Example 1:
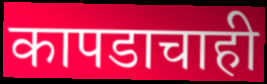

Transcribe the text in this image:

कापडाचाही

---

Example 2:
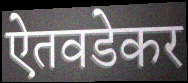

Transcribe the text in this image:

ऐतवडेकर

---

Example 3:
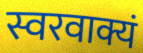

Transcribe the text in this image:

स्वरवाक्यं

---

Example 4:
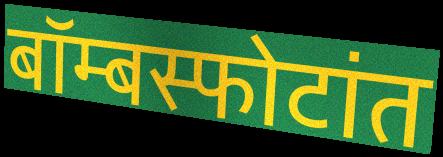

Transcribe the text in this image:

बॉम्बस्फोटांत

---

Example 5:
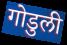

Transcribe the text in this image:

गोडुली